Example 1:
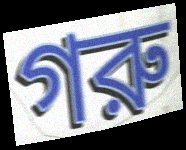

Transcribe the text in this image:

গরু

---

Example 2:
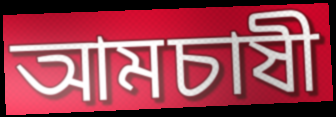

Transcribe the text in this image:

আমচাষী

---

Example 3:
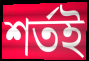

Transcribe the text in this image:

শর্তই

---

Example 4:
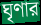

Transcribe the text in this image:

ঘৃণার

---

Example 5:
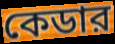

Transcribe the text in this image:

কেডার